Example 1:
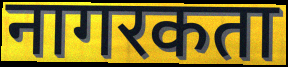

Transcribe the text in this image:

नागरकता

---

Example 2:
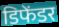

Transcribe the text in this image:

डिफेंडर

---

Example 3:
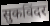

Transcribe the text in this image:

सुकविंदर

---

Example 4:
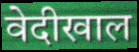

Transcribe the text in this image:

वेदीखाल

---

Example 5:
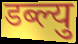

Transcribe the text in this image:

डब्ल्यु